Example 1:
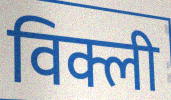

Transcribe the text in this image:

विक्ली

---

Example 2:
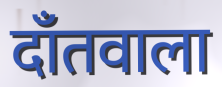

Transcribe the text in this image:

दाँतवाला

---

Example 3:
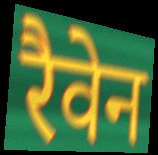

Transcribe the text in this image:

रैवेन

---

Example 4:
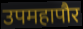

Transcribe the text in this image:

उपमहापौर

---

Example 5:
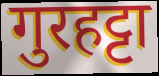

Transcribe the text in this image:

गुरहट्टा